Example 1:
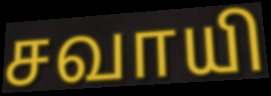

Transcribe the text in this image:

சவாயி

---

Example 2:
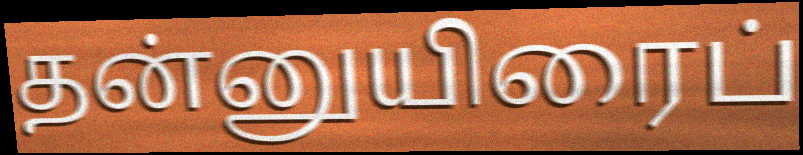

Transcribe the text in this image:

தன்னுயிரைப்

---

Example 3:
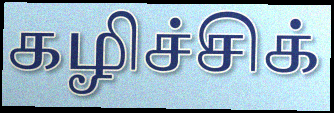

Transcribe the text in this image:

கழிச்சிக்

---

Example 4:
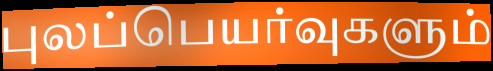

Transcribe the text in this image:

புலப்பெயர்வுகளும்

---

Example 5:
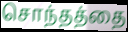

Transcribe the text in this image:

சொந்தத்தை